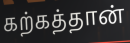
கற்கத்தான்